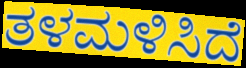
ತಳಮಳಿಸಿದೆ